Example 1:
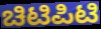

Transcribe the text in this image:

ಚಿಟಿಪಿಟಿ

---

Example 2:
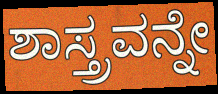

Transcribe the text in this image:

ಶಾಸ್ತ್ರವನ್ನೇ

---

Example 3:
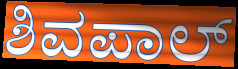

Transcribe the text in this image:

ಶಿವಪಾಲ್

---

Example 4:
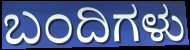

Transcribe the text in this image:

ಬಂದಿಗಳು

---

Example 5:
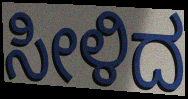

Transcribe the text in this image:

ಸೀಳಿದ